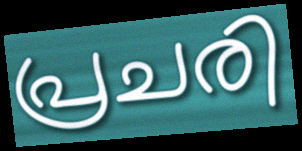
പ്രചരി